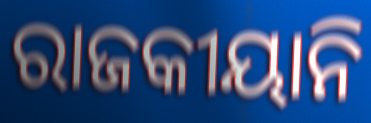
ରାଜକୀୟାନି